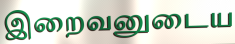
இறைவனுடைய